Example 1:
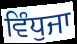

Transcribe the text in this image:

ਵਿੰਧੁਜਾ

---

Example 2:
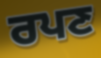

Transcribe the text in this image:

ਰਪਣ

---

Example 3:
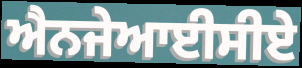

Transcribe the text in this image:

ਐਨਜੇਆਈਸੀਏ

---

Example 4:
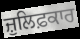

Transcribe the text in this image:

ਜ਼ੁਲਿਫ਼ਕਾਰ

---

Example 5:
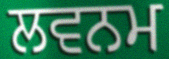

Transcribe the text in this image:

ਲਵਨਮ